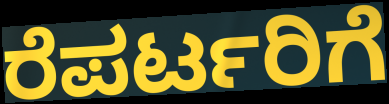
ರೆಪರ್ಟರಿಗೆ